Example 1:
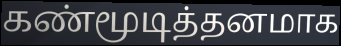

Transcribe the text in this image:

கண்மூடித்தனமாக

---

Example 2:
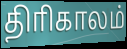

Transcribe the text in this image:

திரிகாலம்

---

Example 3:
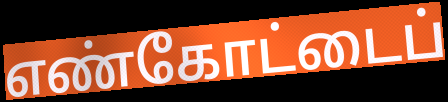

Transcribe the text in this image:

எண்கோட்டைப்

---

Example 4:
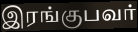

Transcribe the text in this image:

இரங்குபவர்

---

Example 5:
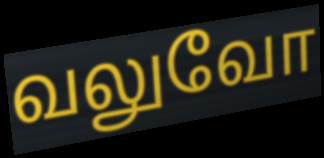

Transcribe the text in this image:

வலுவோ